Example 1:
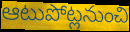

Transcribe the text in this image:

ఆటుపోట్లనుంచి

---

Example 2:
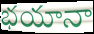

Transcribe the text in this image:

భయానా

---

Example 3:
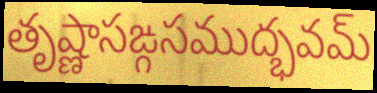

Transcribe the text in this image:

తృష్ణాసఙ్గసముద్భవమ్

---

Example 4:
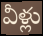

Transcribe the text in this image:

వీళ్లు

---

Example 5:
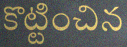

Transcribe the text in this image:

కొట్టించిన